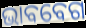
ଭାବବେଗ